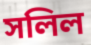
সলিল